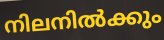
നിലനിൽക്കും